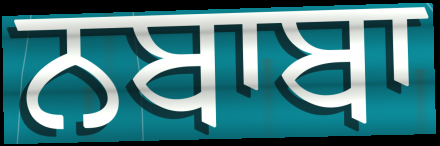
ਨਬਾਬਾ